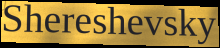
Shereshevsky